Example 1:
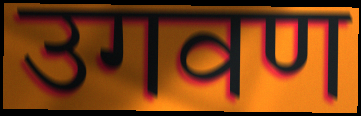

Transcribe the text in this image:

उगवण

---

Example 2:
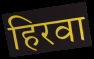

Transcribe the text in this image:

हिरवा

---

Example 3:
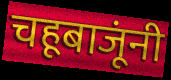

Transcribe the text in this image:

चहूबाजूंनी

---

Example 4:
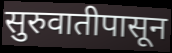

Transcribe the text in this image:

सुरुवातीपासून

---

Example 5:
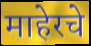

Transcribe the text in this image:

माहेरचे